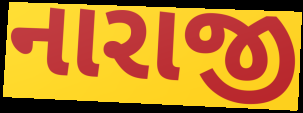
નારાજી